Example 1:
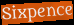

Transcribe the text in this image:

Sixpence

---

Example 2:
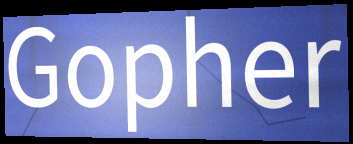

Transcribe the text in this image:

Gopher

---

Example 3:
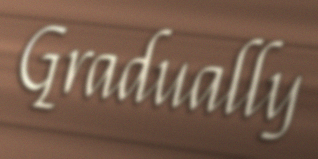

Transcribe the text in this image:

Gradually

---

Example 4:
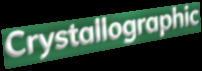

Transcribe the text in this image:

Crystallographic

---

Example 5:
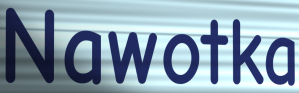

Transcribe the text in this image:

Nawotka